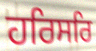
ਹਰਿਸਰਿ